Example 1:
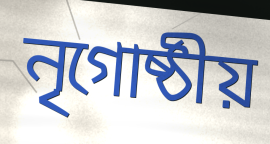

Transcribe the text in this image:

নৃগোষ্ঠীয়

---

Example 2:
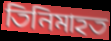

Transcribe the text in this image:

তিনিমাহত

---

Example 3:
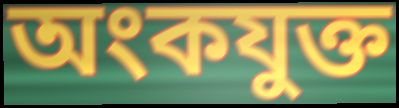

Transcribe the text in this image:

অংকযুক্ত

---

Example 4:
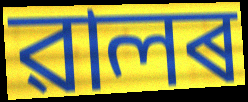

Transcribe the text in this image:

ৱালৰ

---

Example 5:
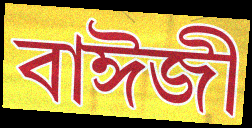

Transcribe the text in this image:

বাঈজী